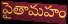
పైతామహం